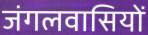
जंगलवासियों